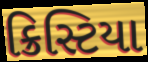
ક્રિસ્ટિયા